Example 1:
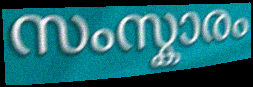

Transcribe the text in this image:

സംസ്കാരം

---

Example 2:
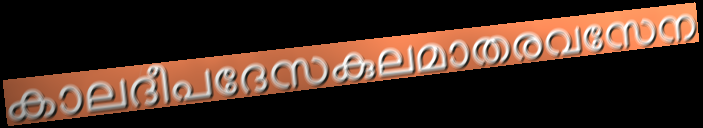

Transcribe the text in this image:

കാലദീപദേസകുലമാതരവസേന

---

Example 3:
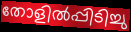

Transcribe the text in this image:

തോളിൽപ്പിടിച്ചു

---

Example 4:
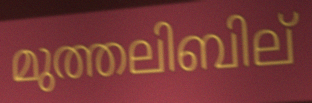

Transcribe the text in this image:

മുത്തലിബില്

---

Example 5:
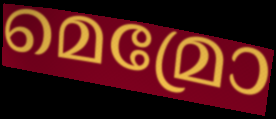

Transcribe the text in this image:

മെമ്രോ